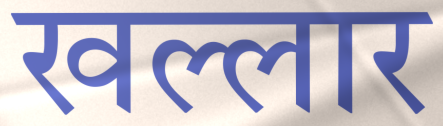
खल्लार